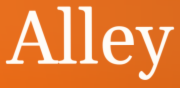
Alley